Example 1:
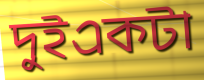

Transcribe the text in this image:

দুইএকটা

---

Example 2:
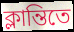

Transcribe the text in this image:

ক্লান্তিতে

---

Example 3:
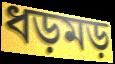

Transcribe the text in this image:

ধড়মড়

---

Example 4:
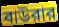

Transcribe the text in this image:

বাউরার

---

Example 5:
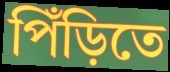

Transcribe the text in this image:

পিঁড়িতে